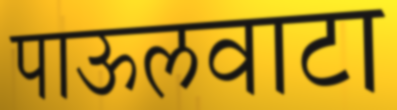
पाऊलवाटा